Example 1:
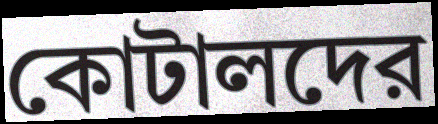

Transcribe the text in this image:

কোটালদের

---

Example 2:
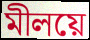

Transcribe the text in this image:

মীলয়ে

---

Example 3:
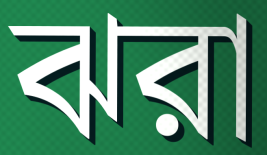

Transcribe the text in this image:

ঝরা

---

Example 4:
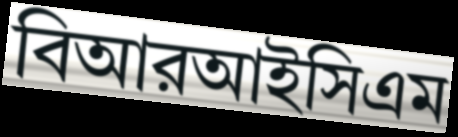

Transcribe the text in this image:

বিআরআইসিএম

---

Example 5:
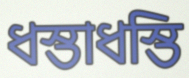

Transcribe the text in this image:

ধস্তাধস্তি